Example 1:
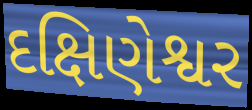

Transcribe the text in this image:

દક્ષિણેશ્વર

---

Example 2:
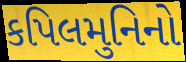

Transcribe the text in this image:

કપિલમુનિનો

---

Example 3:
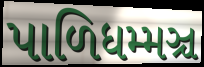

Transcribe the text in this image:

પાળિધમ્મઞ્ચ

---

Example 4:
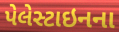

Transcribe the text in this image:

પેલેસ્ટાઇનના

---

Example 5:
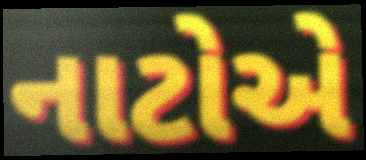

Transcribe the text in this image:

નાટોએ